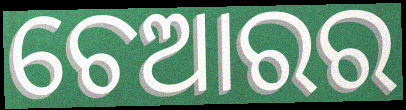
ଚେଆରର